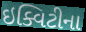
ઇક્વિટીના